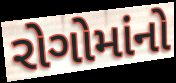
રોગોમાંનો